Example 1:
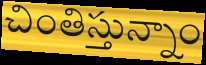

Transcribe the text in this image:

చింతిస్తున్నాం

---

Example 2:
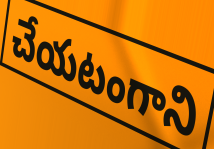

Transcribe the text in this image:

చేయటంగాని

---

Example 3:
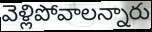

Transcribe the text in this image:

వెళ్లిపోవాలన్నారు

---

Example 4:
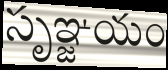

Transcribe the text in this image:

సృఞ్జయం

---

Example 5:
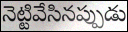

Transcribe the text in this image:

నెట్టివేసినప్పుడు